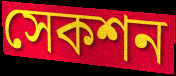
সেকশন